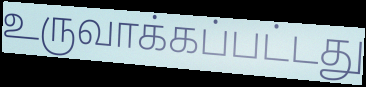
உருவாக்கப்பட்டது